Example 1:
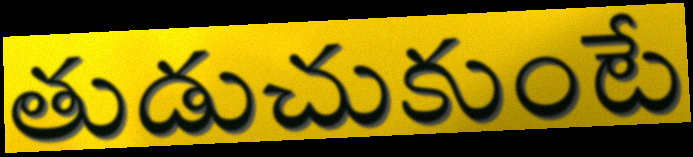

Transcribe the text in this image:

తుడుచుకుంటే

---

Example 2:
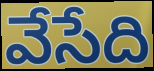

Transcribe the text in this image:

వేసేది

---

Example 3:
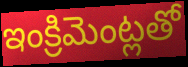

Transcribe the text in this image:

ఇంక్రిమెంట్లతో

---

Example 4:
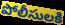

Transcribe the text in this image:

పోలీసులకి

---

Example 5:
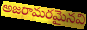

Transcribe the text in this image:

అజరామరమైనవి